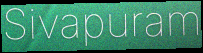
Sivapuram